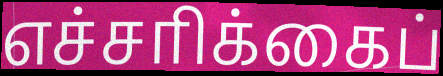
எச்சரிக்கைப்